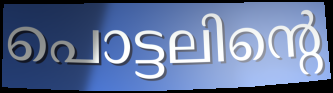
പൊട്ടലിന്റെ